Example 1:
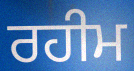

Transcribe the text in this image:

ਰਹੀਮ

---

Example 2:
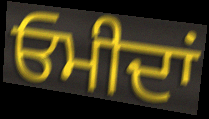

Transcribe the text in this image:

ਓਮੀਦਾਂ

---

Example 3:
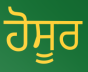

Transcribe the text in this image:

ਹੋਸੂਰ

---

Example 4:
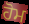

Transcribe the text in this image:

ਹੋਮ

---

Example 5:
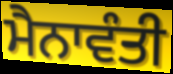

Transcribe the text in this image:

ਮੈਨਾਵੰਤੀ